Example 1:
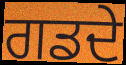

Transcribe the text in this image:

ਗਡਦੇ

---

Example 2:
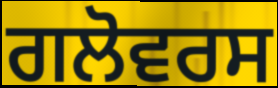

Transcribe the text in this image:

ਗਲੋਵਰਸ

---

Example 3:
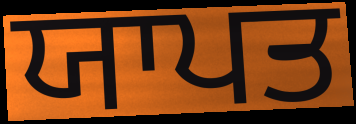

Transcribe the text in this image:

ਯਾਪਤ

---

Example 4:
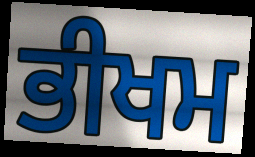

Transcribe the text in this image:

ਭੀਖਮ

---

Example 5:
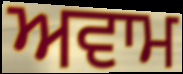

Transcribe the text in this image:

ਅਵਾਮ